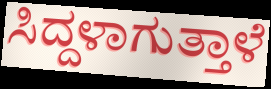
ಸಿದ್ದಳಾಗುತ್ತಾಳೆ